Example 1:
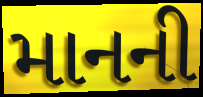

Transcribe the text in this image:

માનની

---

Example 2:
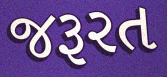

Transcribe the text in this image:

જરૂરત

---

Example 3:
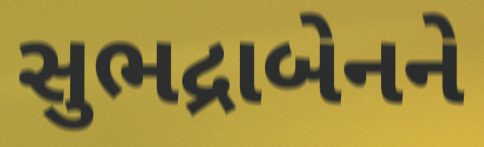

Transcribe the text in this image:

સુભદ્રાબેનને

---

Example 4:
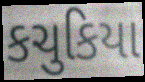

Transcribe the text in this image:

કચુકિયા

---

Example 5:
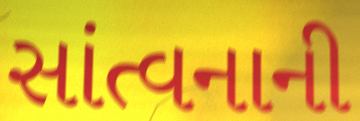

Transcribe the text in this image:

સાંત્વનાની